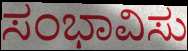
ಸಂಭಾವಿಸು